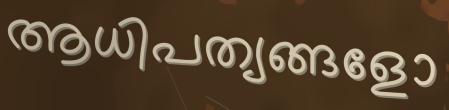
ആധിപത്യങ്ങളോ